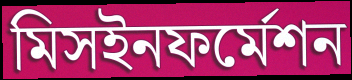
মিসইনফর্মেশন